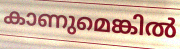
കാണുമെങ്കിൽ